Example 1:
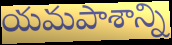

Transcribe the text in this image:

యమపాశాన్ని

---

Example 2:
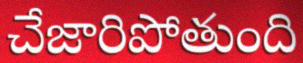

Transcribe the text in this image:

చేజారిపోతుంది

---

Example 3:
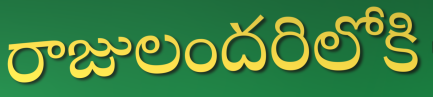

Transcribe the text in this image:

రాజులందరిలోకి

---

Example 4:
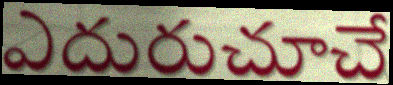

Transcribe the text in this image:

ఎదురుచూచే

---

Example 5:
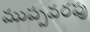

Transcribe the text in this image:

ముప్పవరపు